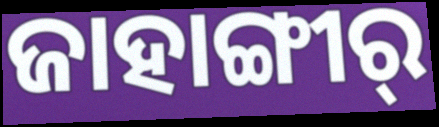
ଜାହାଙ୍ଗୀର୍